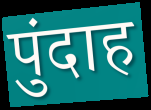
पुंदाह